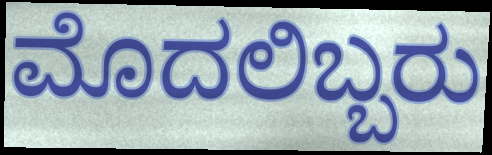
ಮೊದಲಿಬ್ಬರು